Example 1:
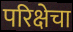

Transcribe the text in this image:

परिक्षेचा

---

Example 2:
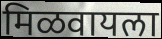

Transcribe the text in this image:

मिळवायला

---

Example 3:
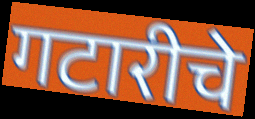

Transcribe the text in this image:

गटारीचे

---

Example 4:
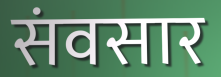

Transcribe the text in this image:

संवसार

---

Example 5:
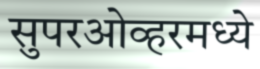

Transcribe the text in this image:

सुपरओव्हरमध्ये